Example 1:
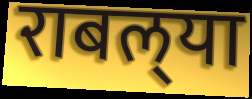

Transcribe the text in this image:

राबल्या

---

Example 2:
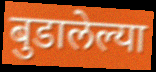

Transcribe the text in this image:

बुडालेल्या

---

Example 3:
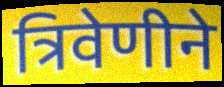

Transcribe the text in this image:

त्रिवेणीने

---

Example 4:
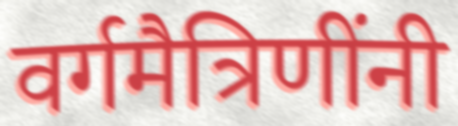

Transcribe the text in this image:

वर्गमैत्रिणींनी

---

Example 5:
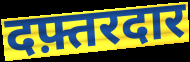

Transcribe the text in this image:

दफ़्तरदार